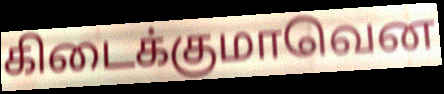
கிடைக்குமாவென